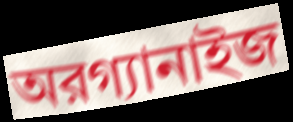
অরগ্যানাইজ